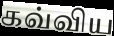
கவ்விய